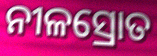
ନୀଳସ୍ରୋତ